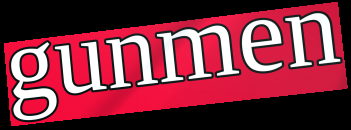
gunmen